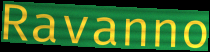
Ravanno